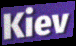
Kiev